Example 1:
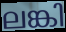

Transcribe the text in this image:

ലങ്കി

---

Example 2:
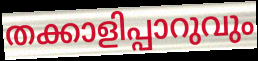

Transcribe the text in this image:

തക്കാളിപ്പാറുവും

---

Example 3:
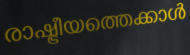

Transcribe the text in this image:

രാഷ്ട്രീയത്തെക്കാൾ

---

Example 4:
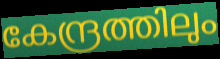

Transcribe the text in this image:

കേന്ദ്രത്തിലും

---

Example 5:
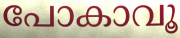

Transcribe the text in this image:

പോകാവൂ